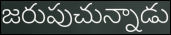
జరుపుచున్నాడు